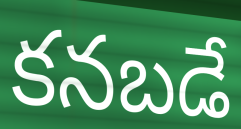
కనబడే